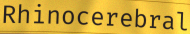
Rhinocerebral